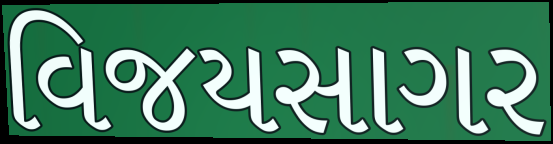
વિજયસાગર